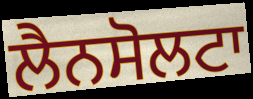
ਲੈਨਸੋਲਟਾ